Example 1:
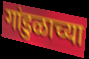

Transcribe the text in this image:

गांडुळाच्या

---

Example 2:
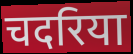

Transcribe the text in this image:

चदरिया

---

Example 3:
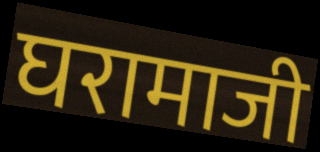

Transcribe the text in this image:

घरामाजी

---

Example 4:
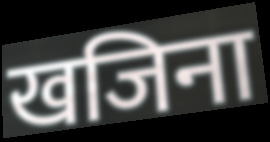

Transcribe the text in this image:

खजिना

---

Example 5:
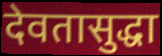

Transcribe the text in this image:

देवतासुद्धा